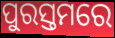
ପୁରସ୍ତମରେ